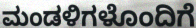
ಮಂಡಳಿಗಳೊಂದಿಗೆ